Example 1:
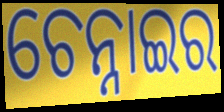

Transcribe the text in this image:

ଚେନ୍ନାଇର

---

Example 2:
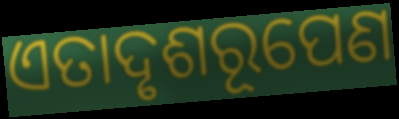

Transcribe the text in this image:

ଏତାଦୃଶରୂପେଣ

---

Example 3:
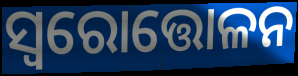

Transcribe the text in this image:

ସ୍ବରୋତ୍ତୋଳନ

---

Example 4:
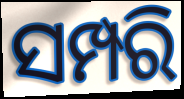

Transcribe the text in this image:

ସମ୍ପରି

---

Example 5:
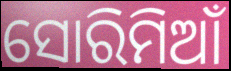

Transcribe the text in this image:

ସୋରିମିଆଁ